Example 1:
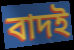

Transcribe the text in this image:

বাদই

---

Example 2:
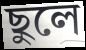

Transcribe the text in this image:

ছুলে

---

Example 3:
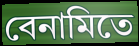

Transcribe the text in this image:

বেনামিতে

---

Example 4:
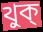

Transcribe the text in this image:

থুক্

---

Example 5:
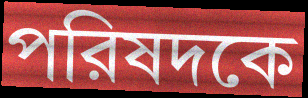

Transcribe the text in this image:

পরিষদকে